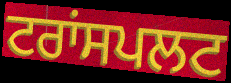
ਟਰਾਂਸਪਲਟ